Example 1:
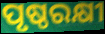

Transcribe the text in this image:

ପୃଷ୍ଠରକ୍ଷୀ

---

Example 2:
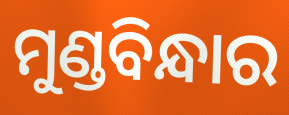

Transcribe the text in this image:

ମୁଣ୍ଡବିନ୍ଧାର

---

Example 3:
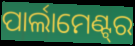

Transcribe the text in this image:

ପାର୍ଲାମେଣ୍ଟ୍‌ର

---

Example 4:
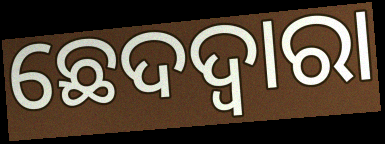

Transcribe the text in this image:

ଛେଦଦ୍ୱାରା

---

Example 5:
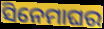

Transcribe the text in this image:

ସିନେମାଘର